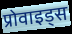
प्रोवाइड्स